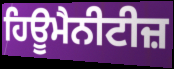
ਹਿਊਮੈਨੀਟੀਜ਼